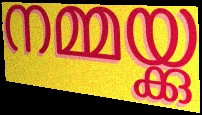
നമ്മയ്ക്കു